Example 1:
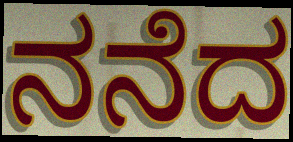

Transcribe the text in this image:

ನನೆದ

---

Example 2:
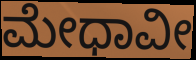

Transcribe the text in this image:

ಮೇಧಾವೀ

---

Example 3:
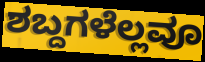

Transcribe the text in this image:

ಶಬ್ದಗಳೆಲ್ಲವೂ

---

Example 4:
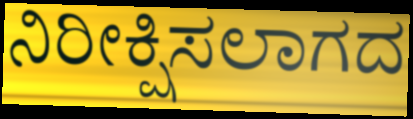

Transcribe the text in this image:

ನಿರೀಕ್ಷಿಸಲಾಗದ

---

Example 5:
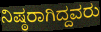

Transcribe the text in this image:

ನಿಷ್ಠರಾಗಿದ್ದವರು